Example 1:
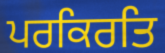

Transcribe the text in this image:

ਪਰਕਿਰਤਿ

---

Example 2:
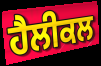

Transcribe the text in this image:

ਹੈਲੀਕਲ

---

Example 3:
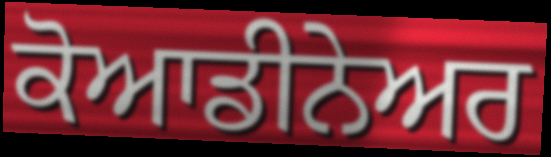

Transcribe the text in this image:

ਕੋਆਡੀਨੇਅਰ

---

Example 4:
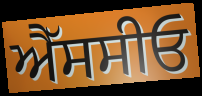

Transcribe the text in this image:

ਐੱਸਸੀਓ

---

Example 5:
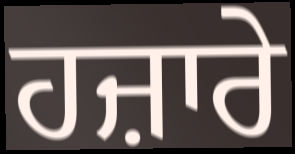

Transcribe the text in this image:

ਹਜ਼ਾਰੇ